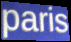
paris